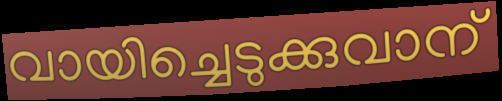
വായിച്ചെടുക്കുവാന്